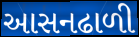
આસનઢાળી